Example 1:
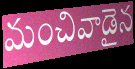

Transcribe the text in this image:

మంచివాడైన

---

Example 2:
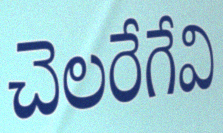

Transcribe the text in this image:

చెలరేగేవి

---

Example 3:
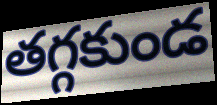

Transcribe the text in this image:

తగ్గకుండ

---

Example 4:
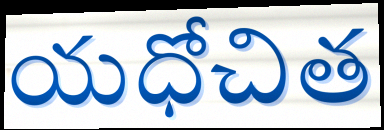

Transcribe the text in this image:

యధోచిత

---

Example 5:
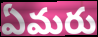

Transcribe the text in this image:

ఏమరు